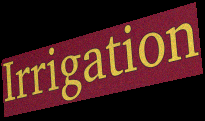
Irrigation